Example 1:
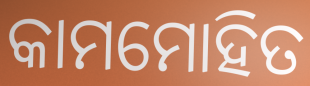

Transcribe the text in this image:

କାମମୋହିତ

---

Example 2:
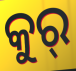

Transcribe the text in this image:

କୁର୍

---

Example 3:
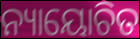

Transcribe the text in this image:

ନ୍ୟାୟୋଚିତ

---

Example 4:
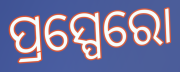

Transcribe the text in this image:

ପ୍ରସ୍ପେରୋ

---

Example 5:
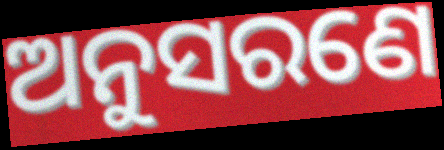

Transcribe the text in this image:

ଅନୁସରଣେ